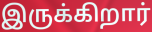
இருக்கிறார்